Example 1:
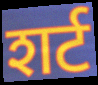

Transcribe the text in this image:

शर्ट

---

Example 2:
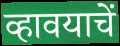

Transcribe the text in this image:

व्हावयाचें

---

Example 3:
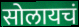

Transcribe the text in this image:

सोलायचं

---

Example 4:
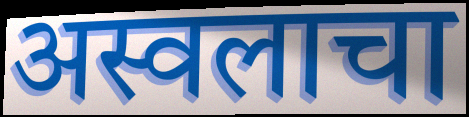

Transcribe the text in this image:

अस्वलाचा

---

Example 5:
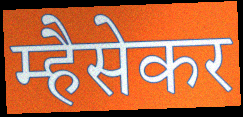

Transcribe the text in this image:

म्हैसेकर